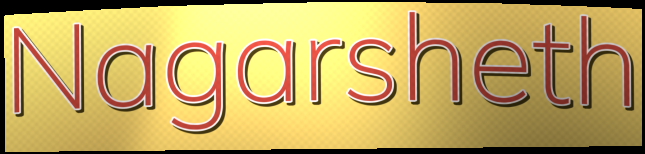
Nagarsheth